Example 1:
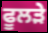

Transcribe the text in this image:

ਫੂਲੜੇ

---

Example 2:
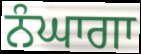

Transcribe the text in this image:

ਨੰਘਾਗਾ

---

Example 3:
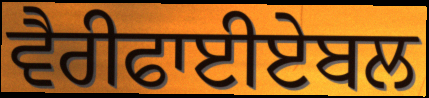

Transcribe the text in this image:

ਵੈਰੀਫਾਈਏਬਲ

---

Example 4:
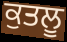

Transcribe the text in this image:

ਕੁਤਲੂ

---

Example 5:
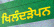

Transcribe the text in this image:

ਖਿਲੰਦੜੇਪਨ